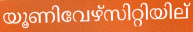
യൂണിവേഴ്സിറ്റിയില്